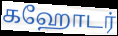
கஹோடர்